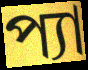
প্যা